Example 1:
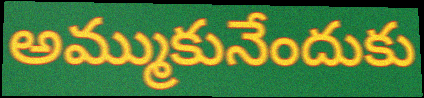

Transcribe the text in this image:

అమ్ముకునేందుకు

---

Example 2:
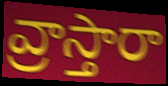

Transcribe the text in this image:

వ్రాస్తారా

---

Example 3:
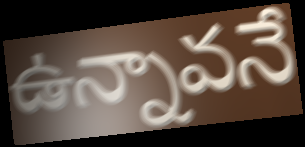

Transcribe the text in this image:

ఉన్నావనే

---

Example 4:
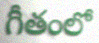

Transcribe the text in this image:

గీతంలో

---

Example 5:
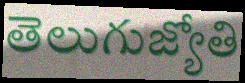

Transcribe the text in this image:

తెలుగుజ్యోతి